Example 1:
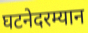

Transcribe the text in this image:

घटनेदरम्यान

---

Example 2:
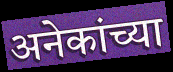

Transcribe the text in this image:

अनेकांच्या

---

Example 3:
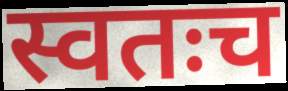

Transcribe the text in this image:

स्वतःच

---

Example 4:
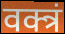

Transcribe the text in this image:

वक्त्रं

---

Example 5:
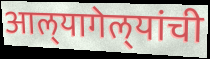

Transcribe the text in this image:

आल्यागेल्यांची